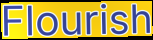
Flourish